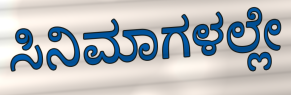
ಸಿನಿಮಾಗಳಲ್ಲೇ